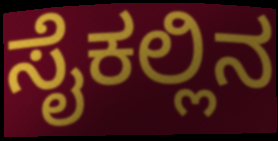
ಸೈಕಲ್ಲಿನ